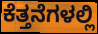
ಕೆತ್ತನೆಗಳಲ್ಲಿ